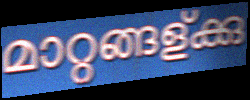
മാറ്റങ്ങള്ക്കു